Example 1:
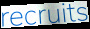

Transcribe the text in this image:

recruits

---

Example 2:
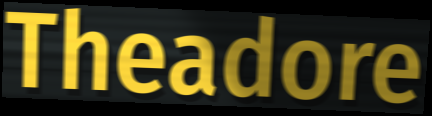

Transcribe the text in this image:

Theadore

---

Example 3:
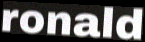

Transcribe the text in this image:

ronald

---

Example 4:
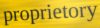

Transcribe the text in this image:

proprietory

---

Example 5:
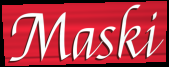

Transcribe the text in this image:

Maski